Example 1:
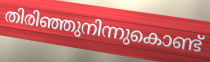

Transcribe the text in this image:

തിരിഞ്ഞുനിന്നുകൊണ്ട്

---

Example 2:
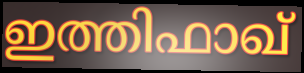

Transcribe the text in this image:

ഇത്തിഫാഖ്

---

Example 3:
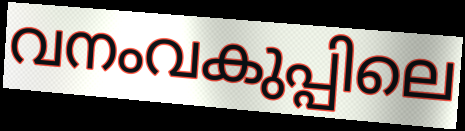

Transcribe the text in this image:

വനംവകുപ്പിലെ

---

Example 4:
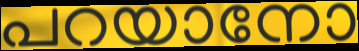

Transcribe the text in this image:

പറയാനോ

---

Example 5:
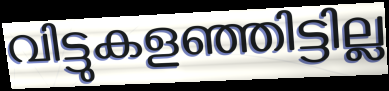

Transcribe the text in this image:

വിട്ടുകളഞ്ഞിട്ടില്ല